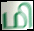
மி